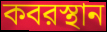
কবরস্থান